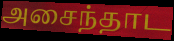
அசைந்தாட